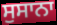
ਸੁਸਾਨਾ